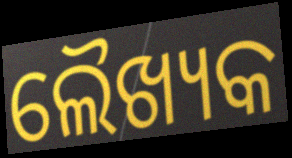
ଲୈଖ୍ୟକ